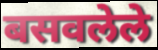
बसवलेले